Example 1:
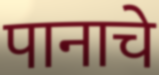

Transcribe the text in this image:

पानाचे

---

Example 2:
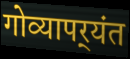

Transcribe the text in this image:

गोव्यापर्यंत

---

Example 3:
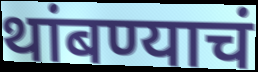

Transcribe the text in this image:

थांबण्याचं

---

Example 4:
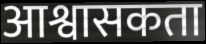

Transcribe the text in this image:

आश्वासकता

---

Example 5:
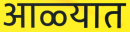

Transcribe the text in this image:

आळ्यात